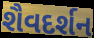
શૈવદર્શન